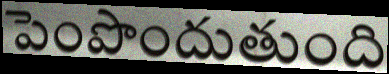
పెంపొందుతుంది